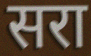
सरा